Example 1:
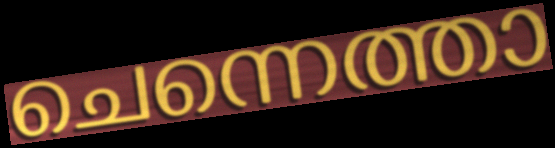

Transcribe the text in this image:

ചെന്നെത്താ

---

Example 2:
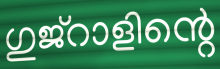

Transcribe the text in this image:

ഗുജ്റാളിന്റെ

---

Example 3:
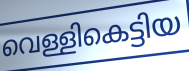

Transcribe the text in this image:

വെള്ളികെട്ടിയ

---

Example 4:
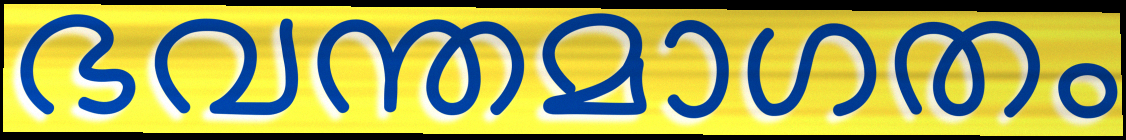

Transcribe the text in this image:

ഭവന്തമാഗതം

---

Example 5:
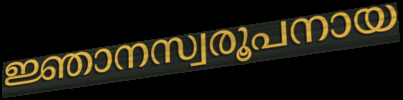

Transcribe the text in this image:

ജ്ഞാനസ്വരൂപനായ